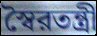
স্বৈরতন্ত্রী